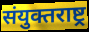
संयुक्तराष्ट्र